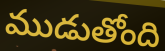
ముడుతోంది